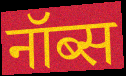
नॉब्स